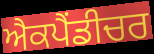
ਐਕਪੈਂਡੀਚਰ